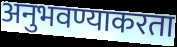
अनुभवण्याकरता